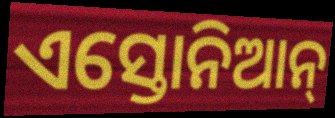
ଏସ୍ତୋନିଆନ୍